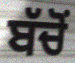
ਬੱਚੋਂ